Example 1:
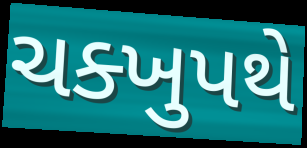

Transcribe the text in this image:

ચક્ખુપથે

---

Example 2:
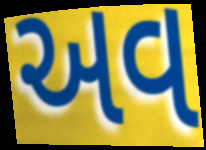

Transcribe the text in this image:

અવ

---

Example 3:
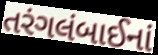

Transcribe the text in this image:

તરંગલંબાઈનાં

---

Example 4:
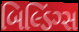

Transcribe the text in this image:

બિલ્ડિંગ્સ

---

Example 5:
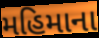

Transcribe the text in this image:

મહિમાના